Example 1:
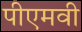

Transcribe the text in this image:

पीएमवी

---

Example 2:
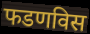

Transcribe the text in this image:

फडणविस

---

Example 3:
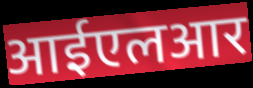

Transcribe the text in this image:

आईएलआर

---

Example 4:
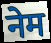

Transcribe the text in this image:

नेम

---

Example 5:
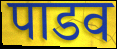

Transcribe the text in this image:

पाडव